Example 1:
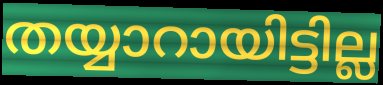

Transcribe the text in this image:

തയ്യാറായിട്ടില്ല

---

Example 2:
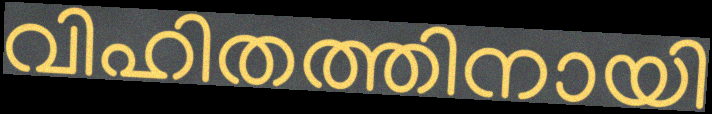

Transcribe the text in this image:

വിഹിതത്തിനായി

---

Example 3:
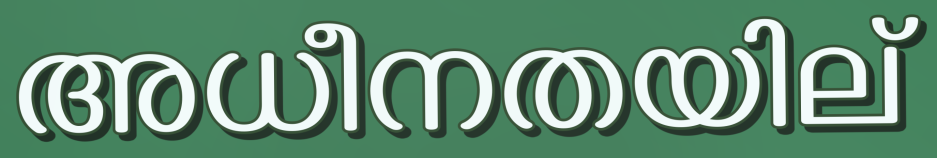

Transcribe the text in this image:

അധീനതയില്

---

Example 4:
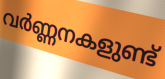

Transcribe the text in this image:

വർണ്ണനകളുണ്ട്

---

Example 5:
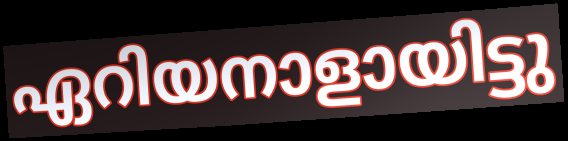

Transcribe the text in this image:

ഏറിയനാളായിട്ടു